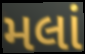
મલાં